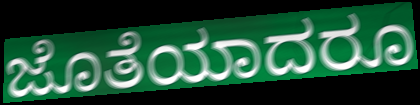
ಜೊತೆಯಾದರೂ